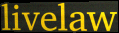
livelaw